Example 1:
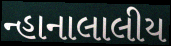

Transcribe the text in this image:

ન્હાનાલાલીય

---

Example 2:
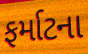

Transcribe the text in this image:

ફર્માટના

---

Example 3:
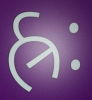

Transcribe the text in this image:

હ્રઃ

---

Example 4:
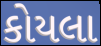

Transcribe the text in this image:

કોયલા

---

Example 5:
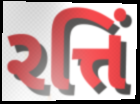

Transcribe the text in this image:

રત્તિં